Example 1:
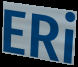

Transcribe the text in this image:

ERi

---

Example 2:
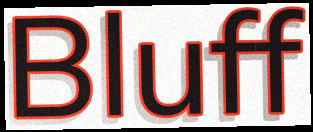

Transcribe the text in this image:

Bluff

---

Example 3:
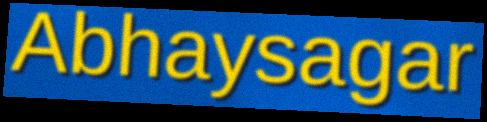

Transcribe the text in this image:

Abhaysagar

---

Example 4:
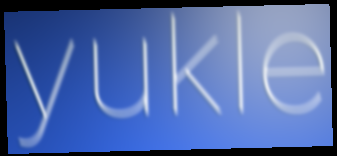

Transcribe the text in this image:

yukle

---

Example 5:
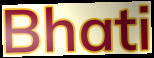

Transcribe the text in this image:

Bhati